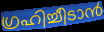
ഗ്രഹിച്ചീടാൻ